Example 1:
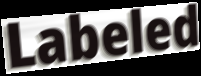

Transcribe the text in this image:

Labeled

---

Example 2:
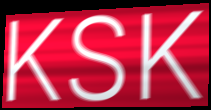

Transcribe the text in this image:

KSK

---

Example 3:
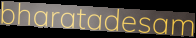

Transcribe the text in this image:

bharatadesam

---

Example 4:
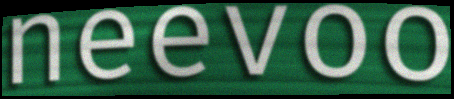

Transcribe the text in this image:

neevoo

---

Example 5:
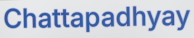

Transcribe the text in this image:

Chattapadhyay